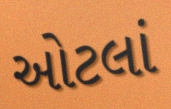
ઓટલાં